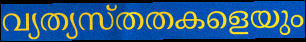
വ്യത്യസ്തതകളെയും